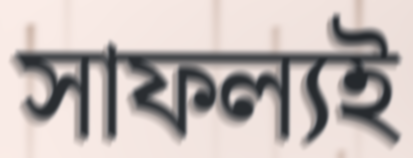
সাফল্যই